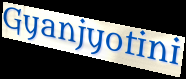
Gyanjyotini